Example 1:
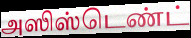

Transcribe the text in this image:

அஸிஸ்டெண்ட்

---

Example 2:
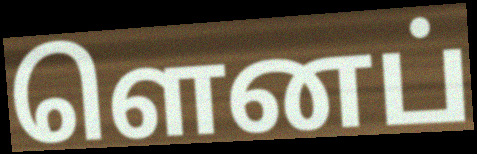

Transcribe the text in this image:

ளெனப்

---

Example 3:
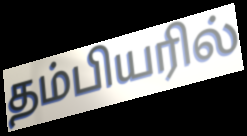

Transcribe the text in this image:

தம்பியரில்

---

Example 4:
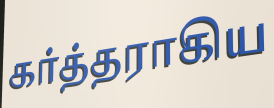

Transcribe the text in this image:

கர்த்தராகிய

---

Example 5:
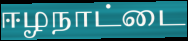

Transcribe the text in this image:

ஈழநாட்டை